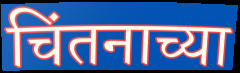
चिंतनाच्या